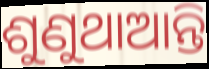
ଶୁଣୁଥାଆନ୍ତି